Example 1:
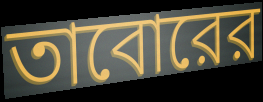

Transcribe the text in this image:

তাবোরের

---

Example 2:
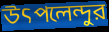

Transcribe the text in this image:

উৎপলেন্দুর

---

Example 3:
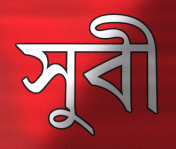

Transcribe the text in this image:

সুবী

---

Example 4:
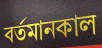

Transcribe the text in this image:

বর্তমানকাল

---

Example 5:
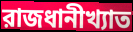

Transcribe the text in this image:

রাজধানীখ্যাত